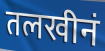
तलखीनं